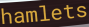
hamlets